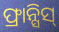
ଫ୍ରାନ୍ସିସ୍